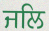
ਜਲਿ